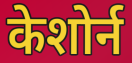
केशोर्न